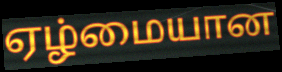
ஏழ்மையான